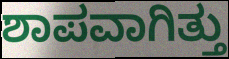
ಶಾಪವಾಗಿತ್ತು